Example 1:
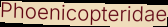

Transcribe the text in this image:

Phoenicopteridae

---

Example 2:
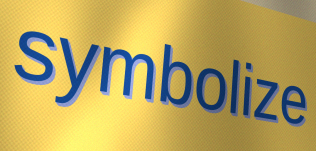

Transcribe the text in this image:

symbolize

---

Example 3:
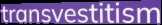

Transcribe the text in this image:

transvestitism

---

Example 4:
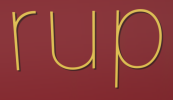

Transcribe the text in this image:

rup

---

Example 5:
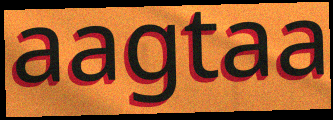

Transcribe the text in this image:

aagtaa